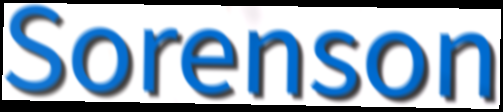
Sorenson